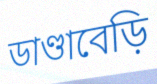
ডাণ্ডাবেড়ি